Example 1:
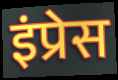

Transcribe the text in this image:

इंप्रेस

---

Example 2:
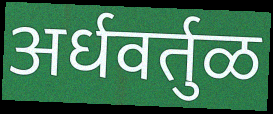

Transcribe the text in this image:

अर्धवर्तुळ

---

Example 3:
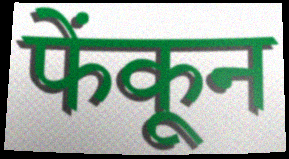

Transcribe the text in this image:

फेंकून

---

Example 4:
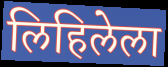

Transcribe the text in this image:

लिहिलेला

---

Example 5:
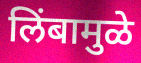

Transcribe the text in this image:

लिंबामुळे